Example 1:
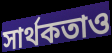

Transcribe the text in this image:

সার্থকতাও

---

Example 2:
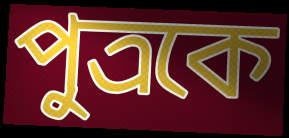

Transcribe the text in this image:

পুত্রকে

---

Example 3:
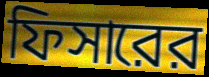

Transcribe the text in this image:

ফিসারের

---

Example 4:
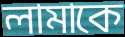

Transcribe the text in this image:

লামাকে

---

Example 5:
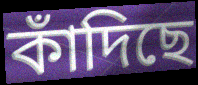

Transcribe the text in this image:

কাঁদিছে